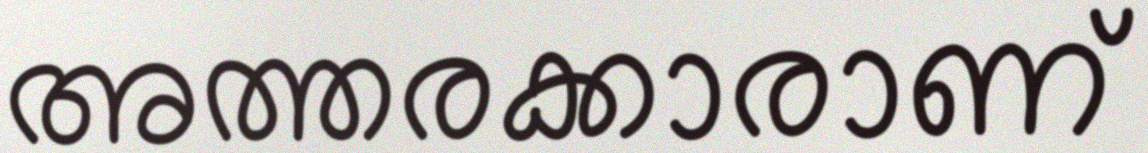
അത്തരക്കാരാണ്